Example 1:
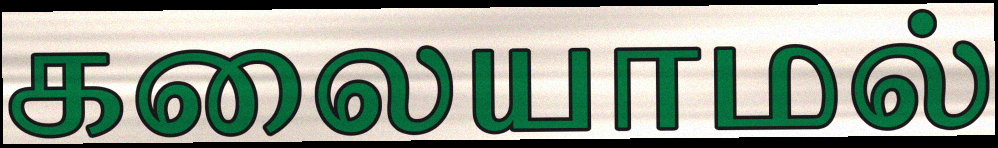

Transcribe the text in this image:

கலையாமல்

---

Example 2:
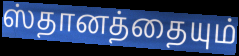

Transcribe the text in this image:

ஸ்தானத்தையும்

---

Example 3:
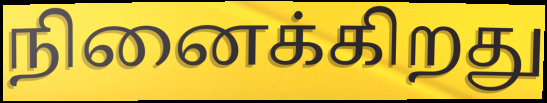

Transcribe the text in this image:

நினைக்கிறது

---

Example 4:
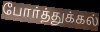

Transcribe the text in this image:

போர்த்துக்கல்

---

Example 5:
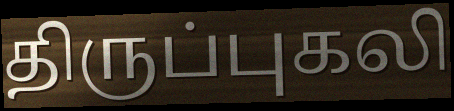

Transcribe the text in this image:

திருப்புகலி